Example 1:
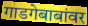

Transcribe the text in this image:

गाडगेबाबांवर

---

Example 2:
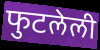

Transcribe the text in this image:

फुटलेली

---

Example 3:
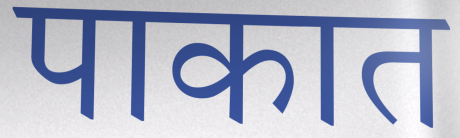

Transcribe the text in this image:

पाकात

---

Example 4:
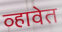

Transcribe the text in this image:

व्हावेत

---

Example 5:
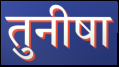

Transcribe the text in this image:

तुनीषा